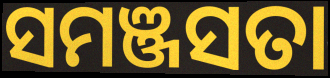
ସମଞ୍ଜସତା